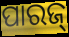
ପାରଜ୍